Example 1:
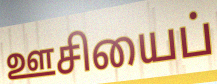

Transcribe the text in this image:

ஊசியைப்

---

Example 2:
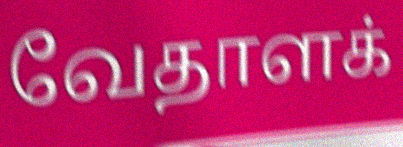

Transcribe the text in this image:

வேதாளக்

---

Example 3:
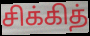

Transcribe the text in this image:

சிக்கித்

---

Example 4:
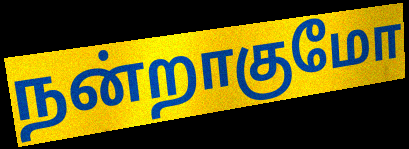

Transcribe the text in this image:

நன்றாகுமோ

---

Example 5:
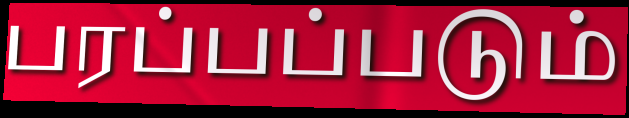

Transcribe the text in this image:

பரப்பப்படும்